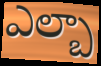
ఎల్బా